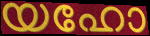
യഹോ